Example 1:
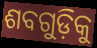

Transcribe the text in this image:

ଶବଗୁଡ଼ିକୁ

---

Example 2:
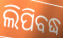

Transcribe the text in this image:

ଲିପିବଦ୍ଧ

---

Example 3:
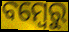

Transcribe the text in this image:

ବମ୍ବେରୁ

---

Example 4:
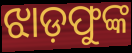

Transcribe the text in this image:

ଝାଡ଼ଫୁଙ୍କ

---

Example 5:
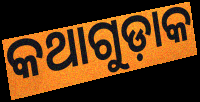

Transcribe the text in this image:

କଥାଗୁଡ଼ାକ